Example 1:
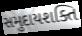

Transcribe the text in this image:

સમુદાયશક્તિ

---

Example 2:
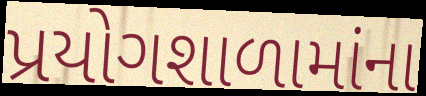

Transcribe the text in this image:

પ્રયોગશાળામાંના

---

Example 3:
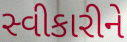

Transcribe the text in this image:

સ્વીકારીને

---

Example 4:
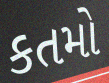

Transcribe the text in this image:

કતમો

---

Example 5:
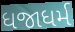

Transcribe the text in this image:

ધજાધર્મ